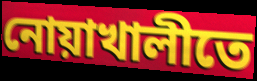
নোয়াখালীতে